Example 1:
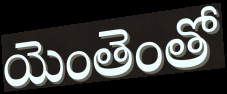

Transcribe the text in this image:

యెంతెంతో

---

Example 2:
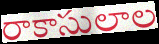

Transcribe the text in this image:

రాకాసులాల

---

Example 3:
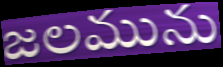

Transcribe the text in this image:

జలమును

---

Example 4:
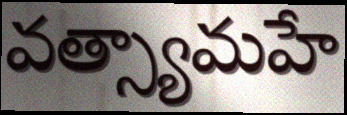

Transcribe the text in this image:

వత్స్యామహే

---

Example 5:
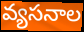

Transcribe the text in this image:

వ్యసనాల